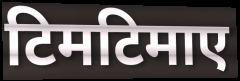
टिमटिमाए